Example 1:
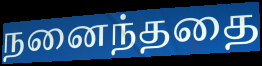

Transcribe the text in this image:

நனைந்ததை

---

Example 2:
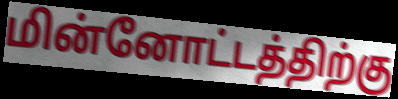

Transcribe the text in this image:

மின்னோட்டத்திற்கு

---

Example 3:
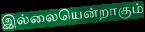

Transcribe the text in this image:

இல்லையென்றாகும்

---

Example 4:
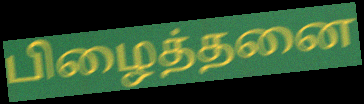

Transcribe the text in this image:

பிழைத்தனை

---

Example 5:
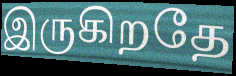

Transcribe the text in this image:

இருகிறதே